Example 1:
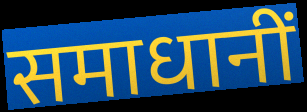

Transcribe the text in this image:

समाधानीं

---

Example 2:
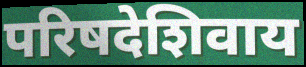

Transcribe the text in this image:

परिषदेशिवाय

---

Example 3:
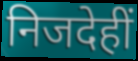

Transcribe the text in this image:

निजदेहीं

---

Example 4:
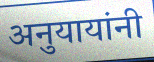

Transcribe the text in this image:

अनुयायांनी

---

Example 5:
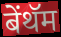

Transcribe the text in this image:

बेंथॅम